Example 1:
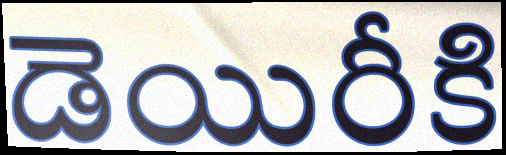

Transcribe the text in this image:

డెయిరీకి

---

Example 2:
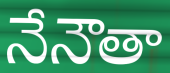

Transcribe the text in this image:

నేనౌతా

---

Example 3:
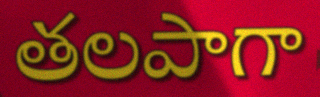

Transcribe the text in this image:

తలపాగా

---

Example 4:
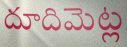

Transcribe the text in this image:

దూదిమెట్ల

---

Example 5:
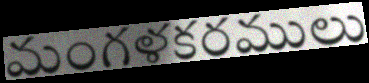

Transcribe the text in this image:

మంగళకరములు